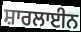
ਸ਼ਾਰਲਾਈਨ